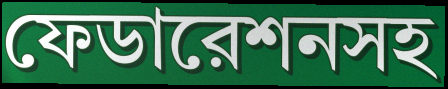
ফেডারেশনসহ